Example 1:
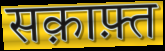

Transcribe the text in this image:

सक़ाफ़्त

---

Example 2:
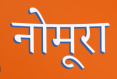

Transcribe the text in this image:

नोमूरा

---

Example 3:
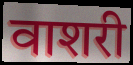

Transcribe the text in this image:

वाशरी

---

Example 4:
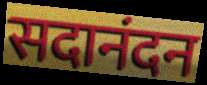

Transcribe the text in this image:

सदानंदन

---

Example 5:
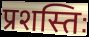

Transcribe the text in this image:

प्रशस्तिः